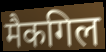
मैकगिल